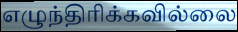
எழுந்திரிக்கவில்லை